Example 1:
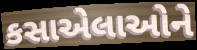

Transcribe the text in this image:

કસાએલાઓને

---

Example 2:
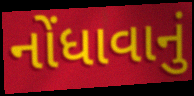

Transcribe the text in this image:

નોંધાવાનું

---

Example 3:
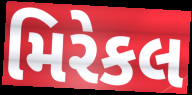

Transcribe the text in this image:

મિરેકલ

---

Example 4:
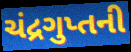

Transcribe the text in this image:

ચંદ્રગુપ્તની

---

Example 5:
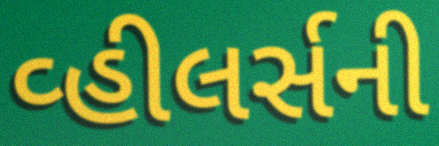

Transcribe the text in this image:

વ્હીલર્સની